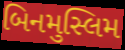
બિનમુસ્લિમ